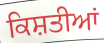
ਕਿਸ਼ਤੀਆਂ